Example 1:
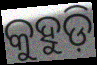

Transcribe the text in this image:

କୁହୁଡ଼ି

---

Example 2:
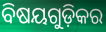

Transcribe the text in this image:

ବିଷୟଗୁଡ଼ିକର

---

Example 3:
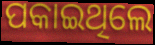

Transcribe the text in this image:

ପକାଇଥିଲେ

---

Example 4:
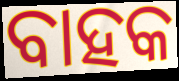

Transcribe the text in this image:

ବାହକ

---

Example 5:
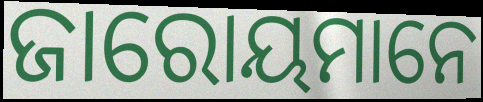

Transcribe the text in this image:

ଜାରୋୟମାନେ